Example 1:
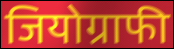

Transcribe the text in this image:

जियोग्राफी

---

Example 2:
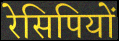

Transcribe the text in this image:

रेसिपियों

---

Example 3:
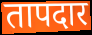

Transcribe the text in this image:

तापदार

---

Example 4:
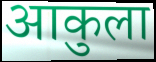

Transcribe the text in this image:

आकुला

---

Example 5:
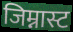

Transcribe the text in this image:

जिम्नास्ट